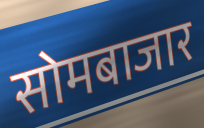
सोमबाजार